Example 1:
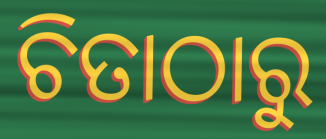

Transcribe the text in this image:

ଚିତାଠାରୁ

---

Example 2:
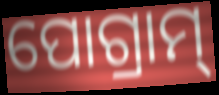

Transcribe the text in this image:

ପୋଗ୍ରାମ୍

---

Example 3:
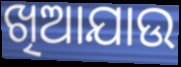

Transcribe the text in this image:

ଖିଆଯାଉ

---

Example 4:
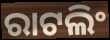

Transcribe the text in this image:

ରାଟଲିଂ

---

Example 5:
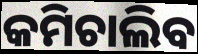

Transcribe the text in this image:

କମିଚାଲିବ